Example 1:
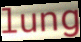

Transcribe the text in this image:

lung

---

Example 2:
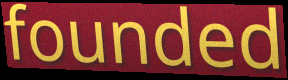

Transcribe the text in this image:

founded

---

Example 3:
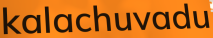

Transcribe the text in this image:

kalachuvadu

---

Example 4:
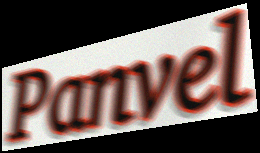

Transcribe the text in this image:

Panvel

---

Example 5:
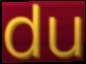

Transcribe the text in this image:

du